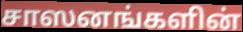
சாஸனங்களின்